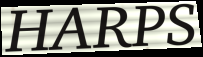
HARPS